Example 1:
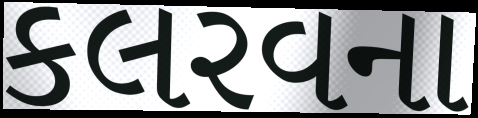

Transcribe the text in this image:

કલરવના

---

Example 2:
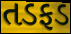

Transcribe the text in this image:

તડફડ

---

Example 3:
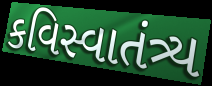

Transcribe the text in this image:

કવિસ્વાતંત્ર્ય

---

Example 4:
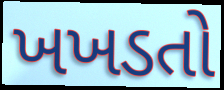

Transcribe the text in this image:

ખખડતો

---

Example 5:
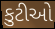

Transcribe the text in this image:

કુટીઓ